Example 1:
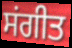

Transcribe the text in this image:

ਸਂਗੀਤ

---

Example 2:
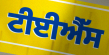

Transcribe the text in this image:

ਟੀਈਐੱਸ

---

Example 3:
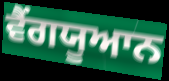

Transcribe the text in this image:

ਵੈਂਗਯੂਆਨ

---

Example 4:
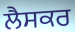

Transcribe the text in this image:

ਲੈਸਕਰ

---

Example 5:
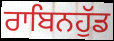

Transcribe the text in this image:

ਰਾਬਿਨਹੁੱਡ